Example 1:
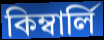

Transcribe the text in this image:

কিম্বার্লি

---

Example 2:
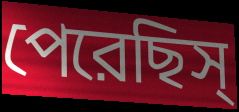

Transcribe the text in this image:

পেরেছিস্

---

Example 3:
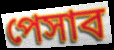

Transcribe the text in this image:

পেসাব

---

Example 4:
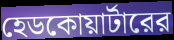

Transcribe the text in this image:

হেডকোয়ার্টারের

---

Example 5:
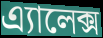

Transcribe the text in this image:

এ্যালেক্স